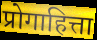
प्रोगाहित्ता